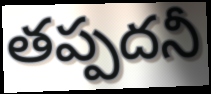
తప్పదనీ